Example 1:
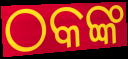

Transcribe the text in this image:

ଠକଙ୍କ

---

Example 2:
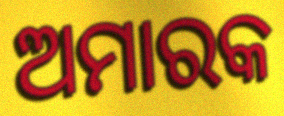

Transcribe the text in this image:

ଅମାରକ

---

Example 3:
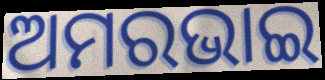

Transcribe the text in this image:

ଅମରଭାଇ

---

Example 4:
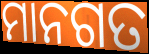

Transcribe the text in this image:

ମାନଗତ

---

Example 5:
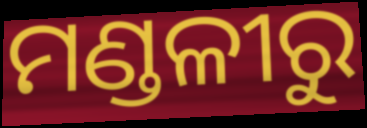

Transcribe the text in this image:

ମଣ୍ଡଳୀରୁ